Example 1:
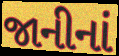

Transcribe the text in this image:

જાનીનાં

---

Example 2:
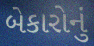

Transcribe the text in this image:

બેકારોનું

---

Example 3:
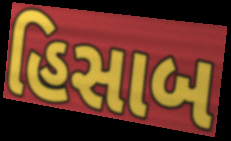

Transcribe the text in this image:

હિસાબ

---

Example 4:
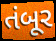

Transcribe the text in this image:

તંબૂર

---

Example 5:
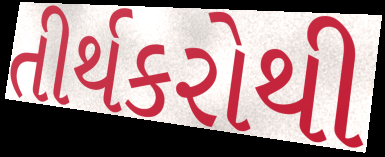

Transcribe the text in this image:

તીર્થકરોથી